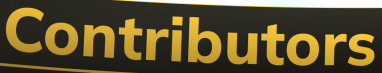
Contributors